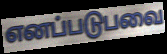
எனப்படுபவை